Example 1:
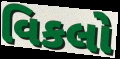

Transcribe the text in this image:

વિકલો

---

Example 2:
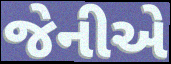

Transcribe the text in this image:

જેનીએ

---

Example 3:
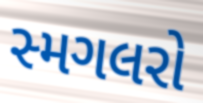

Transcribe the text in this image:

સ્મગલરો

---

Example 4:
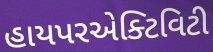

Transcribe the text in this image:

હાયપરએક્ટિવિટી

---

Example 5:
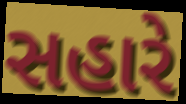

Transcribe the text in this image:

સહારે